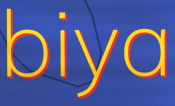
biya